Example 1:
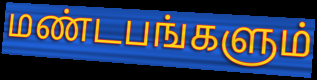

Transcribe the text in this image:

மண்டபங்களும்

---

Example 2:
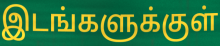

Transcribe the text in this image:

இடங்களுக்குள்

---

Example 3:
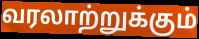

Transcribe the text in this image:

வரலாற்றுக்கும்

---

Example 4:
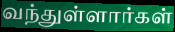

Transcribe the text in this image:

வந்துள்ளார்கள்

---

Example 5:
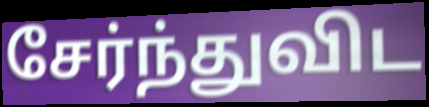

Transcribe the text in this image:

சேர்ந்துவிட